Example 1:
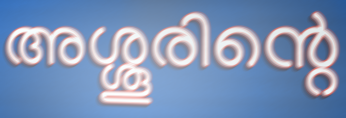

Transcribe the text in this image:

അശ്ശൂരിന്റെ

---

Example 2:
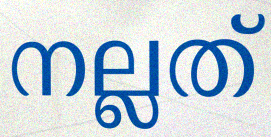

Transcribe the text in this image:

നല്ലത്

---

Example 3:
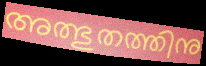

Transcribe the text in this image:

അത്ഭുതത്തിനു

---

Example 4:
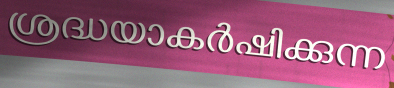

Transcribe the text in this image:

ശ്രദ്ധയാകർഷിക്കുന്ന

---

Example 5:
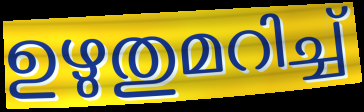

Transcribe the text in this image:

ഉഴുതുമറിച്ച്